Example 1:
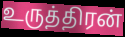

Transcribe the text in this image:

உருத்திரன்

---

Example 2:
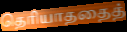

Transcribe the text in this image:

தெரியாததைத்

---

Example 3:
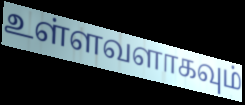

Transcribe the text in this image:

உள்ளவளாகவும்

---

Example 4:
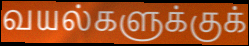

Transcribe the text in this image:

வயல்களுக்குக்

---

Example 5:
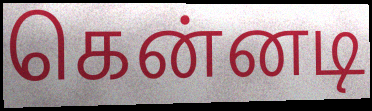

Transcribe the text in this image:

கென்னடி